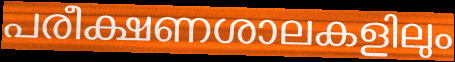
പരീക്ഷണശാലകളിലും